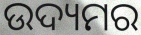
ଉଦ୍ୟମର